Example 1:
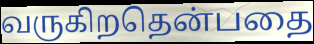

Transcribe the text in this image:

வருகிறதென்பதை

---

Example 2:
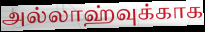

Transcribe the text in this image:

அல்லாஹ்வுக்காக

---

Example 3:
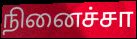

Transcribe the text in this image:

நினைச்சா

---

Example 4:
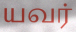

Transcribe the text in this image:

யவர்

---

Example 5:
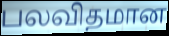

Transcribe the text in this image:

பலவிதமான